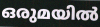
ഒരുമയിൽ